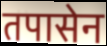
तपासेन